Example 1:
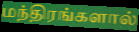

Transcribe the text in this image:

மந்திரங்களால்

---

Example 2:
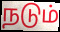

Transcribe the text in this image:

நடும்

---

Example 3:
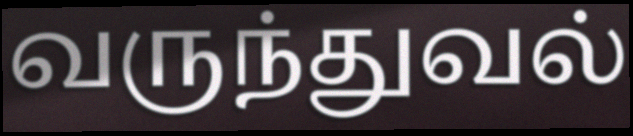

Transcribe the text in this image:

வருந்துவல்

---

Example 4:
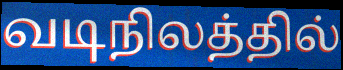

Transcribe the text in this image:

வடிநிலத்தில்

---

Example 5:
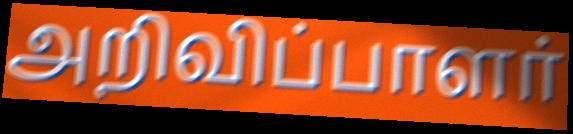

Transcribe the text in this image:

அறிவிப்பாளர்